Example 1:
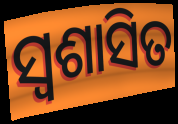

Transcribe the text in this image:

ସ୍ୱଶାସିତ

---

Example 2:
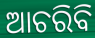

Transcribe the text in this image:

ଆଚରିବି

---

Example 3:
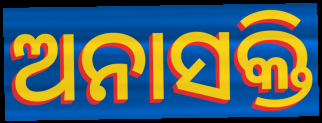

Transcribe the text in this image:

ଅନାସକ୍ତି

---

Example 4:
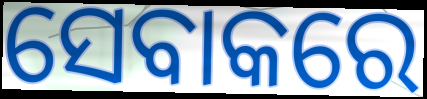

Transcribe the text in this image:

ସେବାକରେ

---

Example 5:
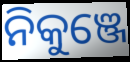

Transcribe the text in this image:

ନିକୁଞ୍ଜେ